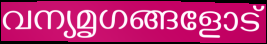
വന്യമൃഗങ്ങളോട്